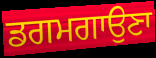
ਡਗਮਗਾਉਣਾ